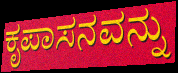
ಕೃಪಾಸನವನ್ನು